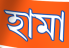
হামা